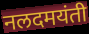
नलदमयंती